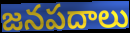
జనపదాలు